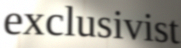
exclusivist